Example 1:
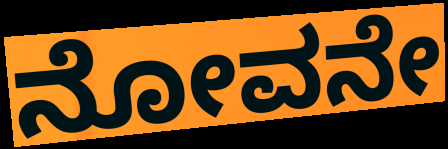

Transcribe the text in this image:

ನೋವನೇ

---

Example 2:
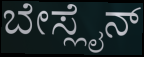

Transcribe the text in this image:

ಬೇಸ್ಲೈನ್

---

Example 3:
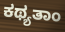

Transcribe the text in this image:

ಕಥ್ಯತಾಂ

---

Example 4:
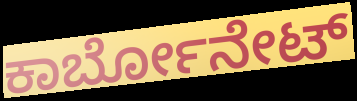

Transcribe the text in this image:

ಕಾರ್ಬೋನೇಟ್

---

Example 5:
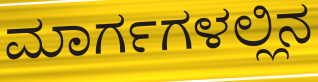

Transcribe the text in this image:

ಮಾರ್ಗಗಳಲ್ಲಿನ